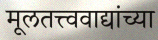
मूलतत्त्ववाद्यांच्या